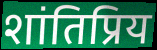
शांतिप्रिय